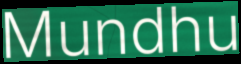
Mundhu